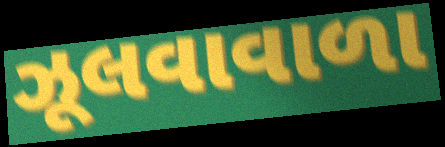
ઝૂલવાવાળા